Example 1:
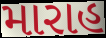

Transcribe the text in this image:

મારાહ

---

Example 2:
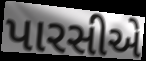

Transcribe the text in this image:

પારસીએ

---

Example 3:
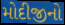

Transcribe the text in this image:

મોદીજીનો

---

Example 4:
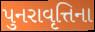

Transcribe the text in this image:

પુનરાવૃત્તિના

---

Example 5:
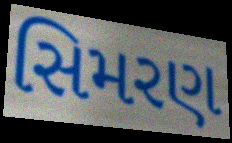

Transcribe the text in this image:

સિમરણ